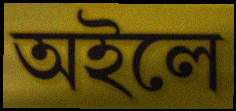
অইলে